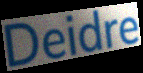
Deidre